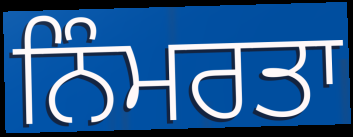
ਨਿੰਮਰਤਾ